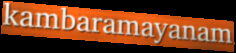
kambaramayanam